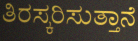
ತಿರಸ್ಕರಿಸುತ್ತಾನೆ